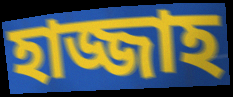
হাজ্জাহ